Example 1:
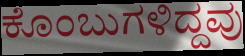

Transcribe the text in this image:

ಕೊಂಬುಗಳಿದ್ದವು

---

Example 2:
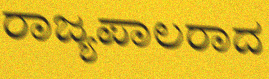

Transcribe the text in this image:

ರಾಜ್ಯಪಾಲರಾದ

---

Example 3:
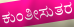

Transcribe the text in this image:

ಕುಂತೀಸುತರ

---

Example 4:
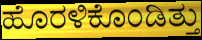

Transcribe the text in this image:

ಹೊರಳಿಕೊಂಡಿತ್ತು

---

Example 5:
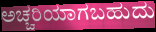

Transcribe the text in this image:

ಅಚ್ಚರಿಯಾಗಬಹುದು